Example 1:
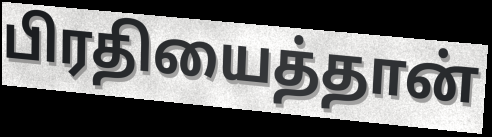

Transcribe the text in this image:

பிரதியைத்தான்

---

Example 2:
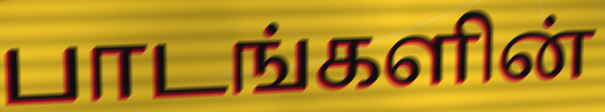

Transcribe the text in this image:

பாடங்களின்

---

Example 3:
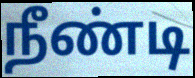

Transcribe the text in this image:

நீண்டி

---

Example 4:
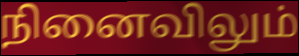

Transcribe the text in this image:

நினைவிலும்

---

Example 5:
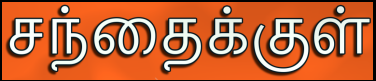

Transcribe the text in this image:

சந்தைக்குள்